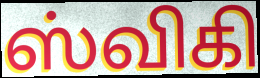
ஸ்விகி